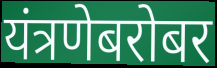
यंत्रणेबरोबर